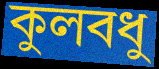
কুলবধু